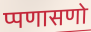
प्पणासणो